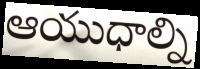
ఆయుధాల్ని